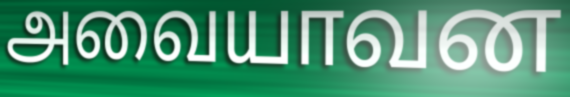
அவையாவன